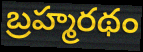
బ్రహ్మరథం